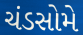
ચંડસોમે